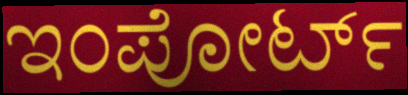
ಇಂಪೋರ್ಟ್